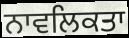
ਨਾਵਲਿਕਤਾ